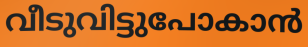
വീടുവിട്ടുപോകാൻ